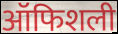
ऑफिशली